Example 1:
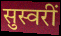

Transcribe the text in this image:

सुस्वरीं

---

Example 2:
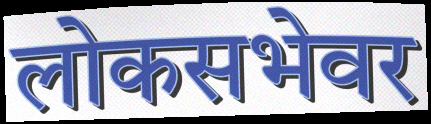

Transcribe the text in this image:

लोकसभेवर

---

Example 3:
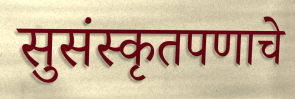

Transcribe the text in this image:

सुसंस्कृतपणाचे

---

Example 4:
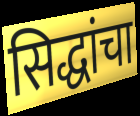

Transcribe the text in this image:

सिद्धांचा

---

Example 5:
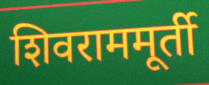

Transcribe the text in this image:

शिवराममूर्ती